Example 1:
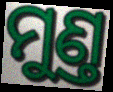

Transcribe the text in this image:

ମୁଣ୍ତ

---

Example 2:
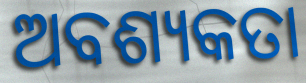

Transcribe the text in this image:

ଅବଶ୍ୟକତା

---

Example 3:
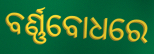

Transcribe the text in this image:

ବର୍ଣ୍ଣବୋଧରେ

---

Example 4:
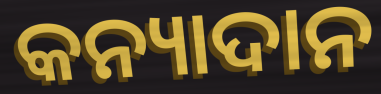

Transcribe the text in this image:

କନ୍ୟାଦାନ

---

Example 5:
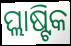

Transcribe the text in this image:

ପ୍ଲାଷ୍ଟିକ